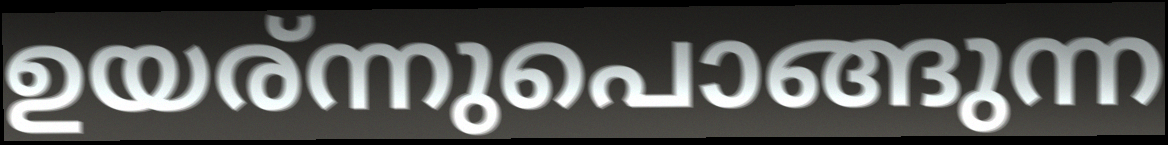
ഉയര്ന്നുപൊങ്ങുന്ന